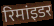
रिमांइडर